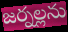
జర్నల్లను